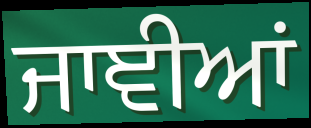
ਜਾਞੀਆਂ